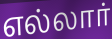
எல்லார்